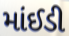
માંઈડી